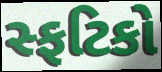
સ્ફટિકો